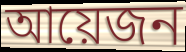
আয়েজন